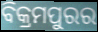
ବିକ୍ରମପୁରର